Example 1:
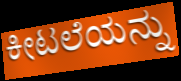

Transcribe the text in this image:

ಕೀಟಲೆಯನ್ನು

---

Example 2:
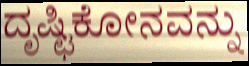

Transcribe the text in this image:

ದೃಷ್ಟಿಕೋನವನ್ನು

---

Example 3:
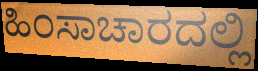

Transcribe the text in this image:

ಹಿಂಸಾಚಾರದಲ್ಲಿ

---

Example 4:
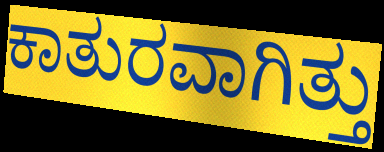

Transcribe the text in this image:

ಕಾತುರವಾಗಿತ್ತು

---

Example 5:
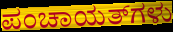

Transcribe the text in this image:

ಪಂಚಾಯತ್‌ಗಳು